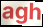
agh